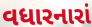
વધારનારાં